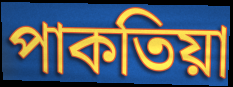
পাকতিয়া